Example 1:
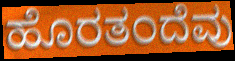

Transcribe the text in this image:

ಹೊರತಂದೆವು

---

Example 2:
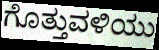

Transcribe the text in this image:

ಗೊತ್ತುವಳಿಯು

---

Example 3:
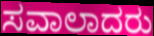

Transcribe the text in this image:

ಸವಾಲಾದರು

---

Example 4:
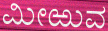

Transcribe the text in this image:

ಮೀಱುವ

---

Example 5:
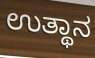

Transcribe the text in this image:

ಉತ್ಥಾನ